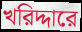
খরিদ্দারে